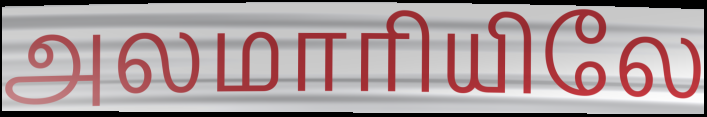
அலமாரியிலே